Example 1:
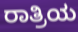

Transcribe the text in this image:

ರಾತ್ರಿಯ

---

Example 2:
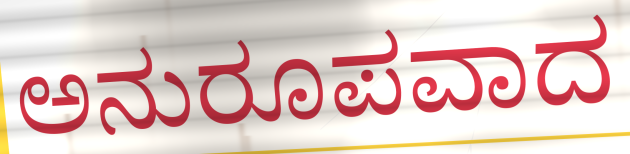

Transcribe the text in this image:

ಅನುರೂಪವಾದ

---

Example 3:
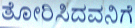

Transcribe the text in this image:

ತೋರಿಸಿದವನಿಗೆ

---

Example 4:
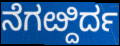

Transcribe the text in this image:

ನೆಗೞ್ದಿರ್ದ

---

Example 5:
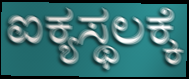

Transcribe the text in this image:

ಐಕ್ಯಸ್ಥಲಕ್ಕೆ